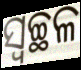
ସ୍ୱଚ୍ଛଳ